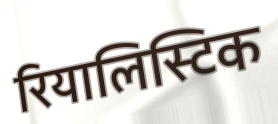
रियालिस्टिक